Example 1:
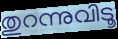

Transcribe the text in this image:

തുറന്നുവിടൂ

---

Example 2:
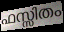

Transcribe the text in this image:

ഫസ്സിതം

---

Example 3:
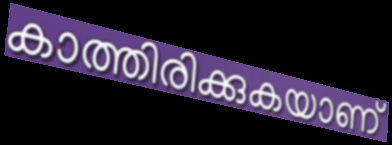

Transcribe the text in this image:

കാത്തിരിക്കുകയാണ്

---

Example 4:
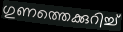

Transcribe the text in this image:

ഗുണത്തെക്കുറിച്ച്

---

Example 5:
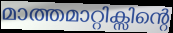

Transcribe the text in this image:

മാത്തമാറ്റിക്സിന്റെ